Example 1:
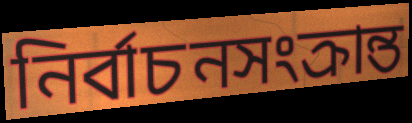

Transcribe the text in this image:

নির্বাচনসংক্রান্ত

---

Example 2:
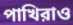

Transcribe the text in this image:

পাখিরাও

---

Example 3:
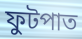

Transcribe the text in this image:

ফুটপাত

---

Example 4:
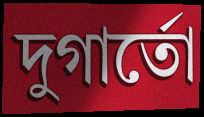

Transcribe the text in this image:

দুগার্তো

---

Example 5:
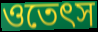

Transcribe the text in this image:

ওতেৎস